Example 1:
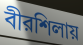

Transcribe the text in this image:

বীরশিলায়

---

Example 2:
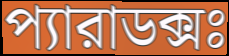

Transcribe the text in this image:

প্যারাডক্সঃ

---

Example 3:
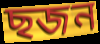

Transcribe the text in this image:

ছজন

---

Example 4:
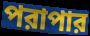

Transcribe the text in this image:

পরাপার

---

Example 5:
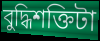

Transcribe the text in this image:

বুদ্ধিশক্তিটা